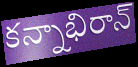
కన్నాభిరాన్